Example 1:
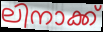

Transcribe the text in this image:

ലിനാക്ക്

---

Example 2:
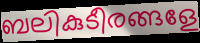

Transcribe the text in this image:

ബലികുടീരങ്ങളേ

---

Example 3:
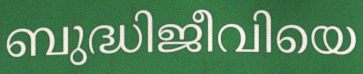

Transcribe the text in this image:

ബുദ്ധിജീവിയെ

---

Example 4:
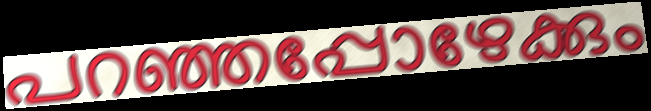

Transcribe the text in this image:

പറഞ്ഞപ്പോഴേക്കും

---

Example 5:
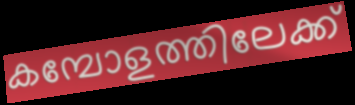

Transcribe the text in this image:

കമ്പോളത്തിലേക്ക്